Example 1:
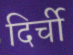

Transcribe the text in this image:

दिर्ची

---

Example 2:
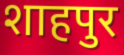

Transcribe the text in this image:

शाहपुर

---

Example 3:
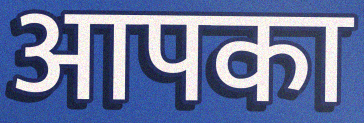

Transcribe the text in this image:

आपका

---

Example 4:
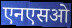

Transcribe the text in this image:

एनएसओ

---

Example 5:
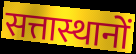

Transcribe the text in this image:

सत्तास्थानों